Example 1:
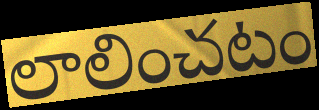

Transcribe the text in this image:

లాలించటం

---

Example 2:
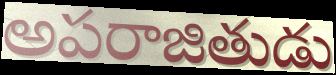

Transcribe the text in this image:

అపరాజితుడు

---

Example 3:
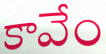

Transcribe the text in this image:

కావేం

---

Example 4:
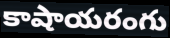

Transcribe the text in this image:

కాషాయరంగు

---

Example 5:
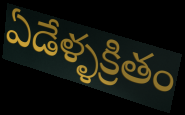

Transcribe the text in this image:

ఏడేళ్ళక్రితం